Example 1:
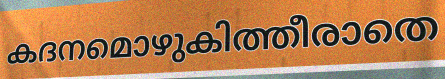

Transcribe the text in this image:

കദനമൊഴുകിത്തീരാതെ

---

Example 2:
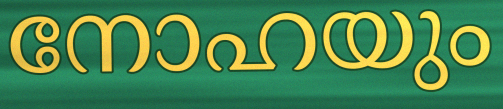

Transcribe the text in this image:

നോഹയും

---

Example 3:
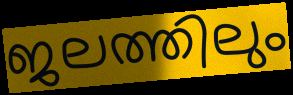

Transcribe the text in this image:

ജലത്തിലും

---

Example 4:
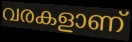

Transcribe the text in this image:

വരകളാണ്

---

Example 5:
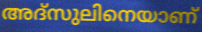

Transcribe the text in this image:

അദ്സുലിനെയാണ്